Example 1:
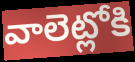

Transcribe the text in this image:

వాలెట్లోకి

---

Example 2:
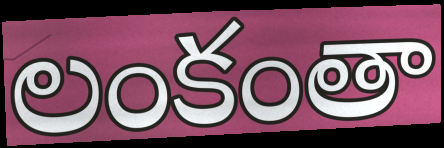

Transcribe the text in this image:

లంకంతా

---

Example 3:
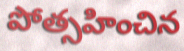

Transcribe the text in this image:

పోత్సహించిన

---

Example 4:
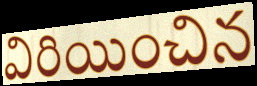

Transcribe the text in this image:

విరియించిన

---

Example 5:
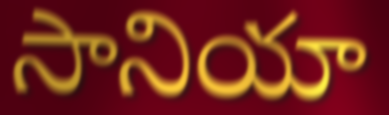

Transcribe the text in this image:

సానియా